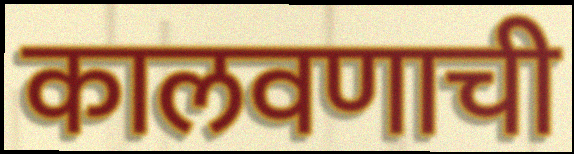
कालवणाची